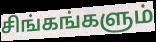
சிங்கங்களும்